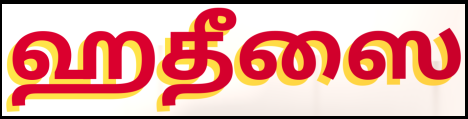
ஹதீஸை